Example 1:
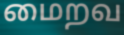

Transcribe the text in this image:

மைறவ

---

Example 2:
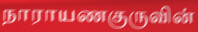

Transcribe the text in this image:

நாராயணகுருவின்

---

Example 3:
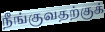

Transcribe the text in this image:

நீங்குவதற்குக்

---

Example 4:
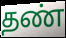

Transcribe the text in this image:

தண்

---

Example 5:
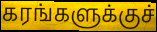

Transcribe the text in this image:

கரங்களுக்குச்